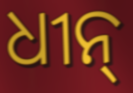
ଧୀନ୍